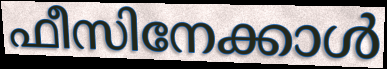
ഫീസിനേക്കാൾ